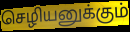
செழியனுக்கும்